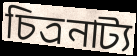
চিত্রনাট্য